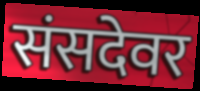
संसदेवर